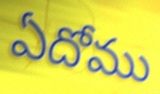
ఏదోము